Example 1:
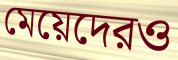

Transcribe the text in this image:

মেয়েদেরও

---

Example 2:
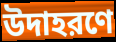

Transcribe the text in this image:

উদাহরণে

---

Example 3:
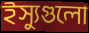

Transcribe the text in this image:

ইস্যুগুলো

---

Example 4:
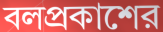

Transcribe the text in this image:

বলপ্রকাশের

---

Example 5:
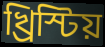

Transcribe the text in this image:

খ্রিস্টিয়